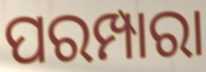
ପରମ୍ପାରା